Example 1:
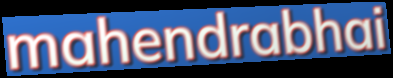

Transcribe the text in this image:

mahendrabhai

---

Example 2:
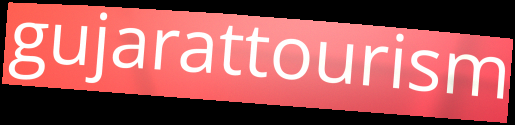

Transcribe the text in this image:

gujarattourism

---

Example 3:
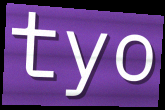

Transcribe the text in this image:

tyo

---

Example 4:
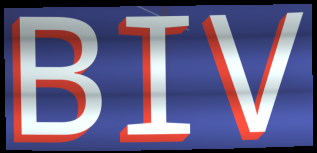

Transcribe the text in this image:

BIV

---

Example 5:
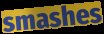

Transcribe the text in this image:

smashes